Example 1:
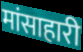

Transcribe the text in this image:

मांसाहारी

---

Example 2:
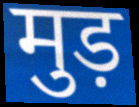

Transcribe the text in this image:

मुड़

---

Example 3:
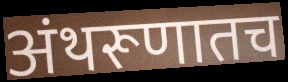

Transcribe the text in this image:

अंथरूणातच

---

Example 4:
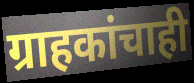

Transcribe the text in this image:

ग्राहकांचाही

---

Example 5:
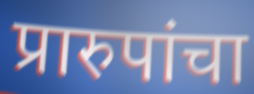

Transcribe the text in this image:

प्रारुपांचा